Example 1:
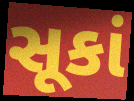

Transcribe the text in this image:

સૂકાં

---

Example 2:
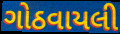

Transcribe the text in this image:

ગોઠવાયલી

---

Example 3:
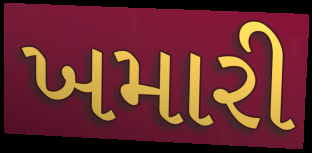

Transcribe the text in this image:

ખમારી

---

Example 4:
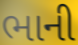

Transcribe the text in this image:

ભાની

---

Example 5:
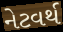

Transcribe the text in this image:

નેટવર્થ